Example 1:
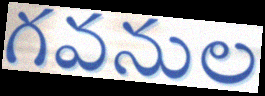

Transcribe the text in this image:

గవనుల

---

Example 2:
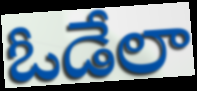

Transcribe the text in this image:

ఓడేలా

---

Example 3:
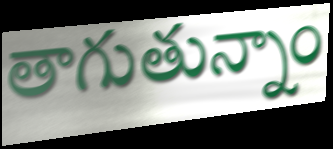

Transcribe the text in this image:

తాగుతున్నాం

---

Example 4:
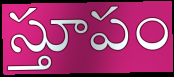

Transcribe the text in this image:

స్తూపం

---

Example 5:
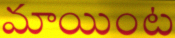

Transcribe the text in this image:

మాయింట